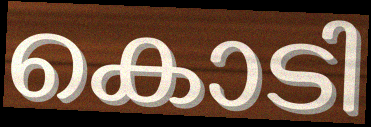
കൊടി